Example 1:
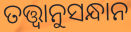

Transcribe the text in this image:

ତତ୍ତ୍ବାନୁସନ୍ଧାନ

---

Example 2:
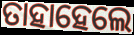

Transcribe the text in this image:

ତାହାହେଲେ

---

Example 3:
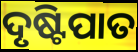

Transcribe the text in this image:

ଦୃଷ୍ଟିପାତ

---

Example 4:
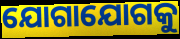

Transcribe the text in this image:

ଯୋଗାଯୋଗକୁ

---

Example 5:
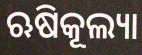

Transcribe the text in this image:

ଋଷିକୂଲ୍ୟା